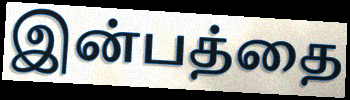
இன்பத்தை